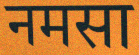
नमसा